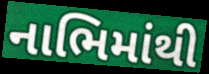
નાભિમાંથી